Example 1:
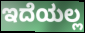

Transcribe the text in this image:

ಇದೆಯಲ್ಲ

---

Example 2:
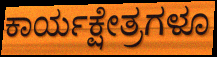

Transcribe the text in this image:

ಕಾರ್ಯಕ್ಷೇತ್ರಗಳೂ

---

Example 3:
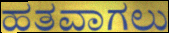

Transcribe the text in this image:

ಹತವಾಗಲು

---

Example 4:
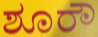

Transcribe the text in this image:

ಶೂರೌ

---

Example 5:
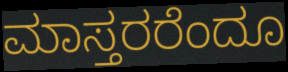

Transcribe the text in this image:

ಮಾಸ್ತರರೆಂದೂ